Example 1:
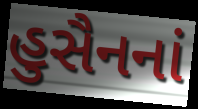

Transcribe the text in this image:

હુસૈનનાં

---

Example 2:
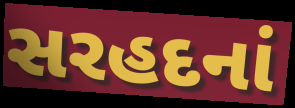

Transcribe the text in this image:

સરહદનાં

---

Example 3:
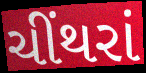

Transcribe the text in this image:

ચીંથરાં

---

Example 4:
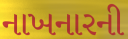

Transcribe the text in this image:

નાખનારની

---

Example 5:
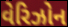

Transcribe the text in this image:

વેરિઝોન